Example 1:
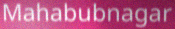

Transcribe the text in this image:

Mahabubnagar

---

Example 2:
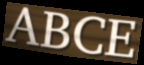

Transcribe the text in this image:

ABCE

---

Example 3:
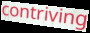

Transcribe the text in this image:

contriving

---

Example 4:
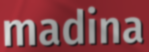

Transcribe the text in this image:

madina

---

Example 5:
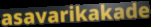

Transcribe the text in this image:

asavarikakade